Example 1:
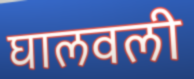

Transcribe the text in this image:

घालवली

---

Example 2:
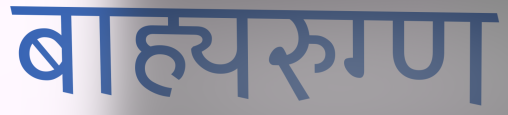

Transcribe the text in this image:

बाह्यरुग्ण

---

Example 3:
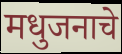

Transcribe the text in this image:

मधुजनाचे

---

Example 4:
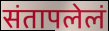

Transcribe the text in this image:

संतापलेलं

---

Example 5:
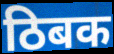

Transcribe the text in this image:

ठिबक